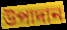
উপাদান